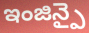
ఇంజిన్పై